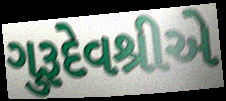
ગુરૂદેવશ્રીએ